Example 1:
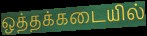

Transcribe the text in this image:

ஒத்தக்கடையில்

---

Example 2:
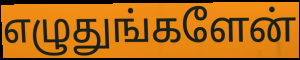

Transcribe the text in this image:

எழுதுங்களேன்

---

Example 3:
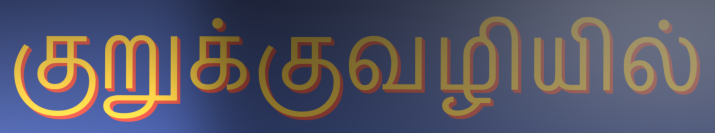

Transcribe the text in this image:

குறுக்குவழியில்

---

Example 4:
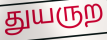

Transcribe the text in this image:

துயருற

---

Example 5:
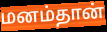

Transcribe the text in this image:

மனம்தான்